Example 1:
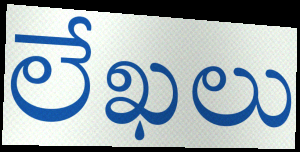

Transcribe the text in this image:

లేఖలు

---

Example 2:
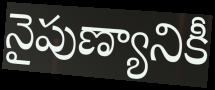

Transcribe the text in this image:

నైపుణ్యానికీ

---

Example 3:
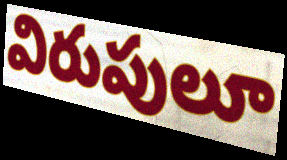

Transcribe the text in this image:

విరుపులూ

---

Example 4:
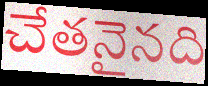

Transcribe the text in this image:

చేతనైనది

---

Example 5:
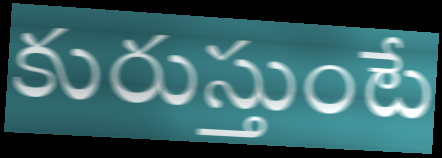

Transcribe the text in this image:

కురుస్తుంటే